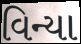
વિન્યા